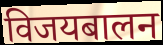
विजयबालन